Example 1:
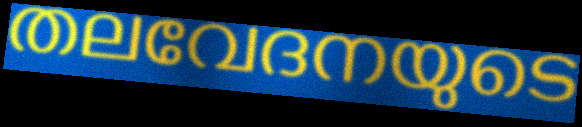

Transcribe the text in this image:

തലവേദനയുടെ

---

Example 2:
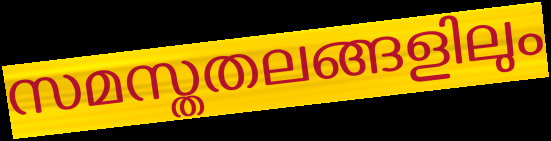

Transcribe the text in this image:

സമസ്തതലങ്ങളിലും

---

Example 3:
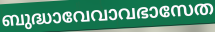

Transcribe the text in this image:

ബുദ്ധാവേവാവഭാസേത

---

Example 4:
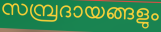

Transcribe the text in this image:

സമ്പ്രദായങ്ങളും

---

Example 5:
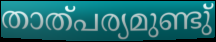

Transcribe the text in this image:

താത്പര്യമുണ്ടു്